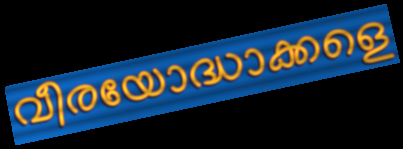
വീരയോദ്ധാക്കളെ